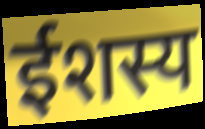
ईशस्य